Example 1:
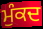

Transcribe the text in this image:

ਮੁੰਕਦ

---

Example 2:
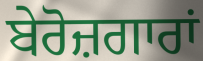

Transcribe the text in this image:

ਬੇਰੋਜ਼ਗਾਰਾਂ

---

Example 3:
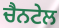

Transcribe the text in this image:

ਚੈਨਟੇਲ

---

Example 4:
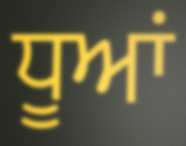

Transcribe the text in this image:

ਧੂਆਂ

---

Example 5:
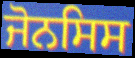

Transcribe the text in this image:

ਜੋਨਸਿਸ